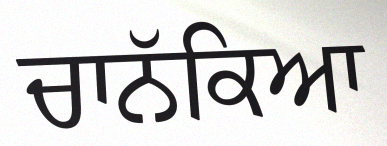
ਚਾਨੱਕਿਆ